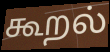
கூறல்